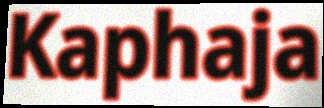
Kaphaja